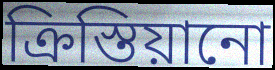
ক্রিস্তিয়ানো